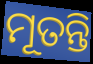
ମୂତନ୍ତି